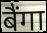
बैंगा